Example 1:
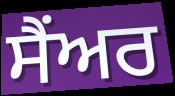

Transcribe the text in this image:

ਸੈਂਅਰ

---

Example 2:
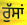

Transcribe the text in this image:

ਰੁੱਸਾਂ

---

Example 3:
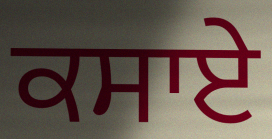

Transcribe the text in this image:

ਕਸਾਏ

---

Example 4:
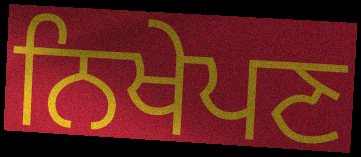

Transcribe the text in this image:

ਨਿਖੇਪਣ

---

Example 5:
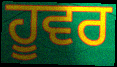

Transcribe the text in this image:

ਹੂਵਰ